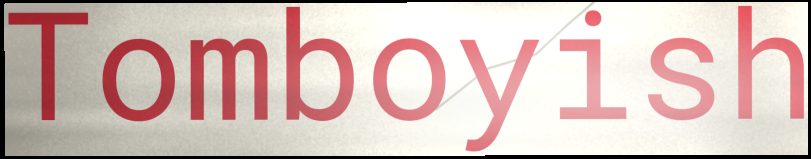
Tomboyish